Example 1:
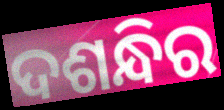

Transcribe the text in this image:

ଦଶନ୍ଧିର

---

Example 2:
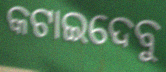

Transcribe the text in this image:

କଟାଇଦେବୁ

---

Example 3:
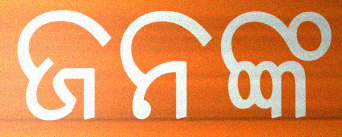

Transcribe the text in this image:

ଜନଙ୍କ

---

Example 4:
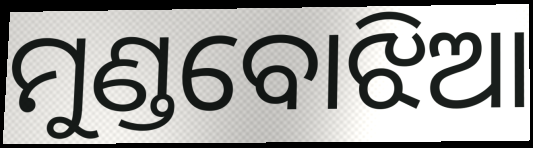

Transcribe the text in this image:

ମୁଣ୍ଡବୋଝିଆ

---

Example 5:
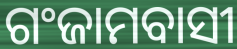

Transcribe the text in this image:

ଗଂଜାମବାସୀ